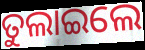
ତୁଲାଇଲେ